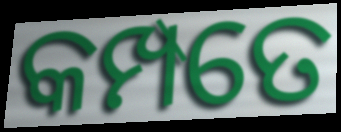
କମ୍ପତେ